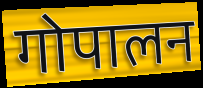
गोपालन